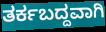
ತರ್ಕಬದ್ದವಾಗಿ